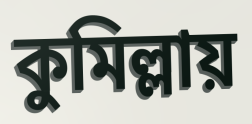
কুমিল্লায়